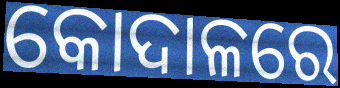
କୋଦାଳରେ